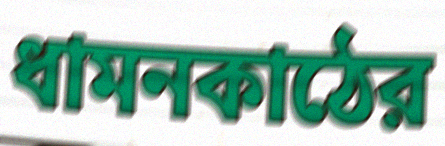
ধামনকাঠের